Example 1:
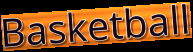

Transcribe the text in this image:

Basketball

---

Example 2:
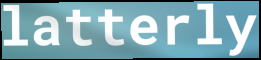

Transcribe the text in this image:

latterly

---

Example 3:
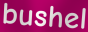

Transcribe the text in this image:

bushel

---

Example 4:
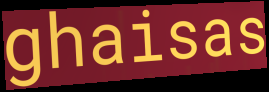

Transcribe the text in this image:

ghaisas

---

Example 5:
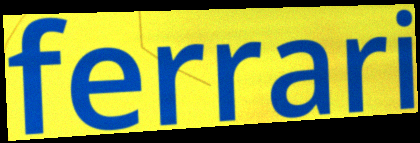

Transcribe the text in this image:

ferrari